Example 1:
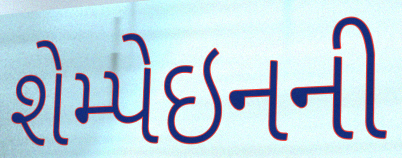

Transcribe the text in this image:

શેમ્પેઇનની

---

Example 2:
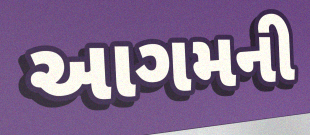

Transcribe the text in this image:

આગમની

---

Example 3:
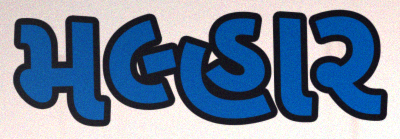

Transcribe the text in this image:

મલ્હાર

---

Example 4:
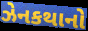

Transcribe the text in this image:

ઝેનકથાનો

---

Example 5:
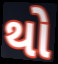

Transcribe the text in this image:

થો